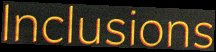
Inclusions